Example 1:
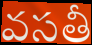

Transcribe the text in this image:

వసతీ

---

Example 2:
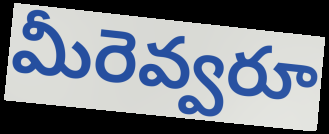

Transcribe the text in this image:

మీరెవ్వరూ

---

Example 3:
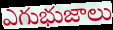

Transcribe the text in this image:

ఎగుభుజాలు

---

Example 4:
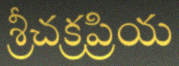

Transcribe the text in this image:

శ్రీచక్రప్రియ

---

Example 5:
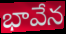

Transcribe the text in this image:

భావేన